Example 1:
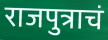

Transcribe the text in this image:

राजपुत्राचं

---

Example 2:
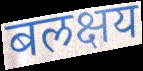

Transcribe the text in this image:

बलक्षय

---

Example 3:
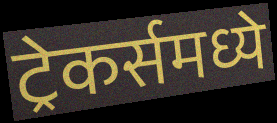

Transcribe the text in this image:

ट्रेकर्समध्ये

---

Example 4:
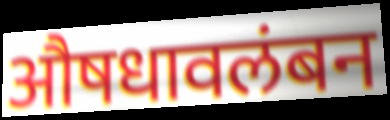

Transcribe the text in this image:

औषधावलंबन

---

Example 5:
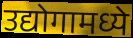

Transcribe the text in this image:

उद्योगामध्ये